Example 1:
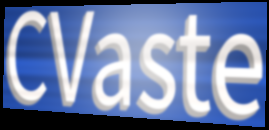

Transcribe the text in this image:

CVaste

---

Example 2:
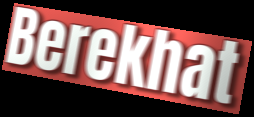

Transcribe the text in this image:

Berekhat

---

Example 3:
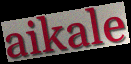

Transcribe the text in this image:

aikale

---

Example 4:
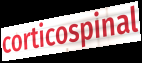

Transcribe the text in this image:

corticospinal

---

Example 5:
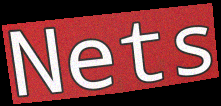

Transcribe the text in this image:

Nets